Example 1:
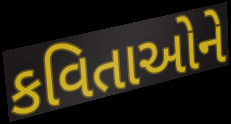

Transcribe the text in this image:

કવિતાઓને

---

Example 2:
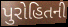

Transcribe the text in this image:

પુરોહિતની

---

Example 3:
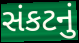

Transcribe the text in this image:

સંકટનું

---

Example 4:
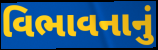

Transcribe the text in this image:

વિભાવનાનું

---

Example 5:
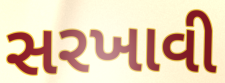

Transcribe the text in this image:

સરખાવી